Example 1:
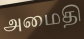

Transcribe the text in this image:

அமைதி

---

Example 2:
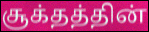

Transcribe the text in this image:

சூக்தத்தின்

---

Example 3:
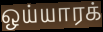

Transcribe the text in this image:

ஒய்யாரக்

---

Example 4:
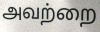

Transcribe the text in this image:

அவற்றை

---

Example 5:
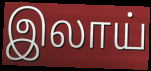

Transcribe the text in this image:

இலாய்